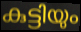
കുട്ടിയും